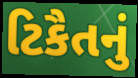
ટિકૈતનું